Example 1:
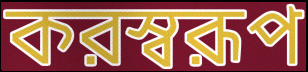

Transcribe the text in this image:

করস্বরূপ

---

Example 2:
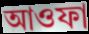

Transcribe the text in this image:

আওফা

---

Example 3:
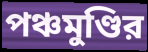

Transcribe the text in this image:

পঞ্চমুণ্ডির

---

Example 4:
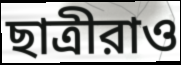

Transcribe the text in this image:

ছাত্রীরাও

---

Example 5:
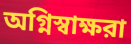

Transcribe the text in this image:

অগ্নিস্বাক্ষরা